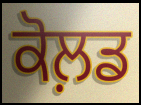
ਕੋਲ਼ਡ